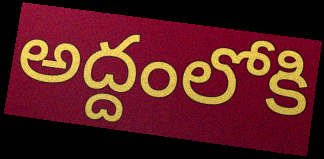
అద్దంలోకి